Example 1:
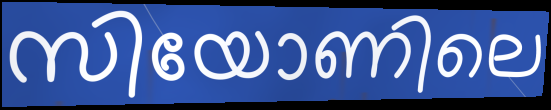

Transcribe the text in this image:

സിയോണിലെ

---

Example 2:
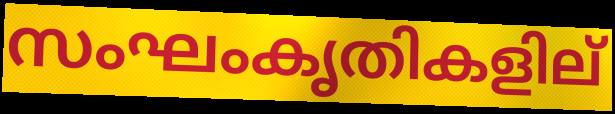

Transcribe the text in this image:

സംഘംകൃതികളില്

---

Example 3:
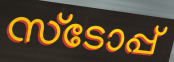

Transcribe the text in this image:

സ്ടോപ്പ്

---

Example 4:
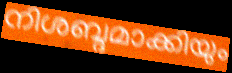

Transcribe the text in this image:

നിശബ്ദമാക്കിയും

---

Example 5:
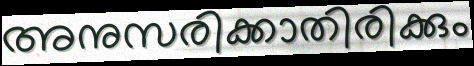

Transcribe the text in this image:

അനുസരിക്കാതിരിക്കും